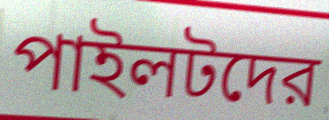
পাইলটদের